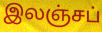
இலஞ்சப்